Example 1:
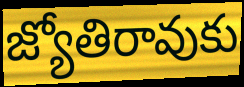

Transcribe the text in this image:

జ్యోతిరావుకు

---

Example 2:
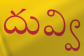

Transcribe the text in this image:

దువ్వి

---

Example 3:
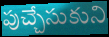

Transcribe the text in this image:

పుచ్చేసుకుని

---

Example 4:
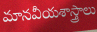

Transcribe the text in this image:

మానవీయశాస్త్రాలు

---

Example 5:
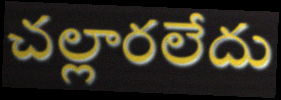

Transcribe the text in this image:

చల్లారలేదు